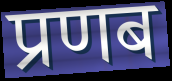
प्रणब